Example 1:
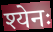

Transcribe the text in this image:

श्येनः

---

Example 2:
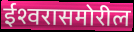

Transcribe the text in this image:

ईश्वरासमोरील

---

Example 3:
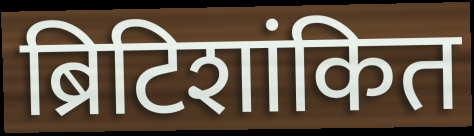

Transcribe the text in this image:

ब्रिटिशांकित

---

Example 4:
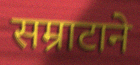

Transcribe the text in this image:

सम्राटाने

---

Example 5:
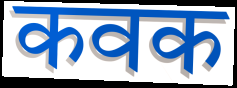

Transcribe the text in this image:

कवक